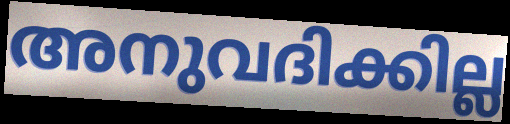
അനുവദിക്കില്ല